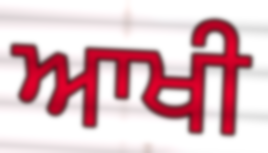
ਆਖੀ